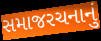
સમાજરચનાનું